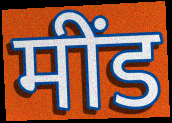
मींड